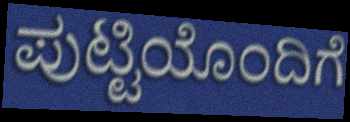
ಪುಟ್ಟಿಯೊಂದಿಗೆ